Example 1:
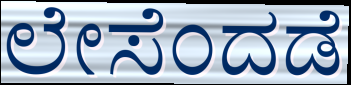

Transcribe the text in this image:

ಲೇಸೆಂದಡೆ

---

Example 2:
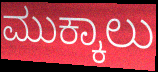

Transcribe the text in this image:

ಮುಕ್ಕಾಲು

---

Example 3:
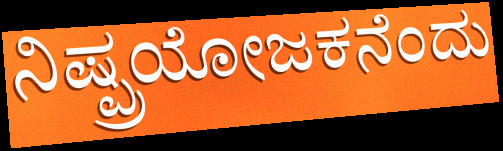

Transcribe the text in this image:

ನಿಷ್ಪ್ರಯೋಜಕನೆಂದು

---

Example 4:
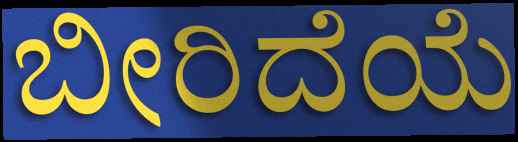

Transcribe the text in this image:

ಬೀರಿದೆಯೆ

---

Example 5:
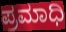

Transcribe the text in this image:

ಪ್ರಮಾಧಿ